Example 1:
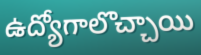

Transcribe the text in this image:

ఉద్యోగాలొచ్చాయి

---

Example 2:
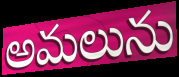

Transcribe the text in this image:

అమలును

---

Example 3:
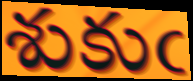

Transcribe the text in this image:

శుకుఁ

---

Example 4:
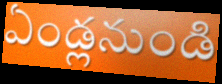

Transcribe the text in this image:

ఏండ్లనుండి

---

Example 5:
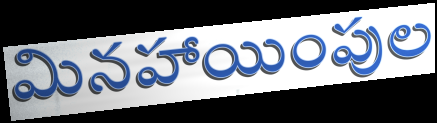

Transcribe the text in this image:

మినహాయింపుల